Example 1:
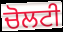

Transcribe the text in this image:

ਚੋਲਟੀ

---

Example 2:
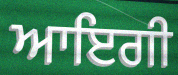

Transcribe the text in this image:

ਆਇਗੀ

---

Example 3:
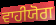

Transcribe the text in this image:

ਵਾਹੀਯੋਗ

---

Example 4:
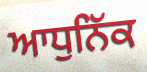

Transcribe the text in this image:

ਆਧੁਨਿੱਕ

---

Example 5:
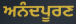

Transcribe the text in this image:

ਅਨੰਦਪੂਰਣ